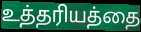
உத்தரியத்தை